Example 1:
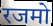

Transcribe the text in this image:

रजमो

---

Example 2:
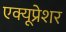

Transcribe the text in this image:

एक्यूप्रेशर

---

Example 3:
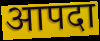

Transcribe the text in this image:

आपदा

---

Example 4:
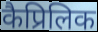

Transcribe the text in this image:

कैप्रिलिक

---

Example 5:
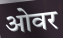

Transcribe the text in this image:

ओवर